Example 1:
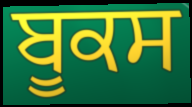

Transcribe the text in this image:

ਬੂਕਸ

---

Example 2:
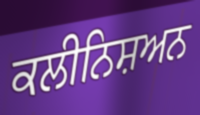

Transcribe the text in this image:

ਕਲੀਨਿਸ਼ਅਨ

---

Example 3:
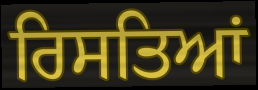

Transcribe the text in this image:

ਰਿਸਤਿਆਂ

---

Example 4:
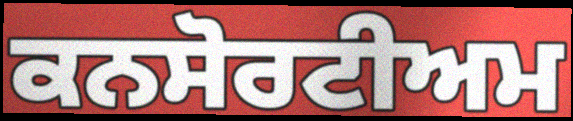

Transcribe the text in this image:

ਕਨਸੋਰਟੀਅਮ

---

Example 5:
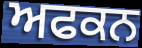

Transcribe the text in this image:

ਅਫਕਨ